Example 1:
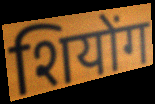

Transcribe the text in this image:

शियोंग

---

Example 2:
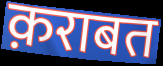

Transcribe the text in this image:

क़राबत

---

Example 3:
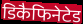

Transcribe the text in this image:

डिकैफिनेटेड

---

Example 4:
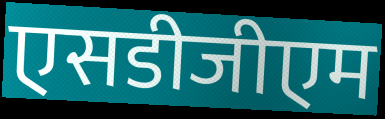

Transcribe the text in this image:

एसडीजीएम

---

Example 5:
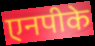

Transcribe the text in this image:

एनपीके